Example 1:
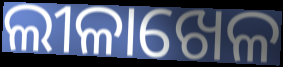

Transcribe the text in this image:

ଲୀଳାଖେଳ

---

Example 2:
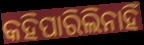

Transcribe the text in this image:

କହିପାରିଲିନାହିଁ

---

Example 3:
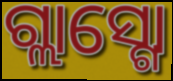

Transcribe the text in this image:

ଗ୍ଲାସ୍ଗୋ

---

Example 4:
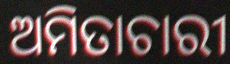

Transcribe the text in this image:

ଅମିତାଚାରୀ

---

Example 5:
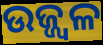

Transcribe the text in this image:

ଉଜ୍ଜ୍ବଳ